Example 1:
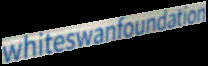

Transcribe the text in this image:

whiteswanfoundation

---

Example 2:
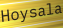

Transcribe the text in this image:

Hoysala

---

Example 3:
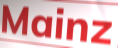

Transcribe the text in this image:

Mainz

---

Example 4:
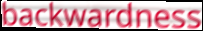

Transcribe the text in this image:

backwardness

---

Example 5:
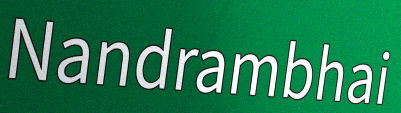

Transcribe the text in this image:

Nandrambhai